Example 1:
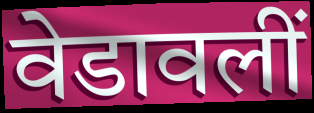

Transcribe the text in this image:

वेडावलीं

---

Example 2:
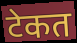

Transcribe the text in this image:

टेकत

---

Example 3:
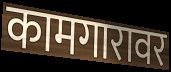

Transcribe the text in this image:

कामगारावर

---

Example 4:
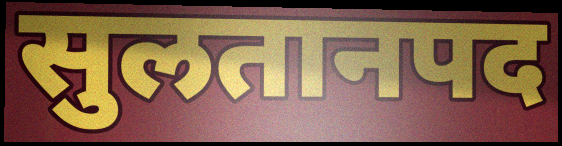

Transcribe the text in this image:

सुलतानपद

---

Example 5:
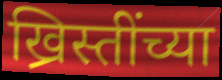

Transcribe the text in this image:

ख्रिस्तींच्या